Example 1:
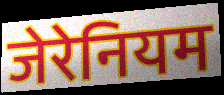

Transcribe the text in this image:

जेरेनियम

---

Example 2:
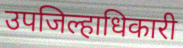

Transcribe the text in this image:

उपजिल्हाधिकारी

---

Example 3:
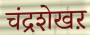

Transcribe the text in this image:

चंद्रशेखऱ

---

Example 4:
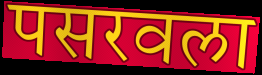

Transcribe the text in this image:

पसरवला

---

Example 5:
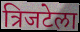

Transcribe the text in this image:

त्रिजटेला